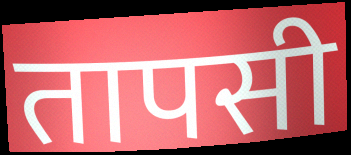
तापसी